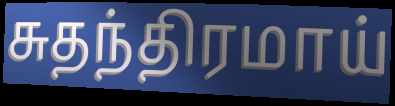
சுதந்திரமாய்